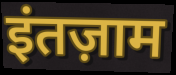
इंतज़ाम